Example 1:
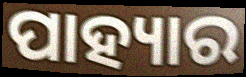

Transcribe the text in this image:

ପାହ୍ୟାର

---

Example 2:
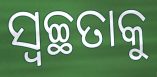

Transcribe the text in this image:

ସ୍ବଚ୍ଛତାକୁ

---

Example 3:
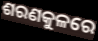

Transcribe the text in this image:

ଶରଣକୁଳରେ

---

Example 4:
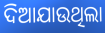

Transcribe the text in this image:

ଦିଆଯାଉଥିଲା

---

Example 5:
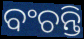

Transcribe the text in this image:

ବଂଚନ୍ତି